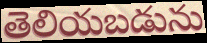
తెలియబడును